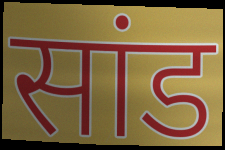
सांड